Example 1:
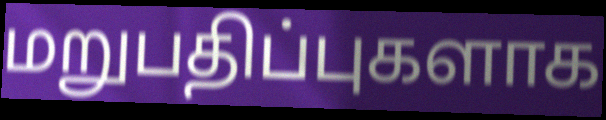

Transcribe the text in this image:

மறுபதிப்புகளாக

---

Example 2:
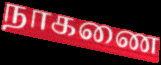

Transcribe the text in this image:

நாகணை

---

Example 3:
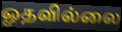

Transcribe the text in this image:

ஓதவில்லை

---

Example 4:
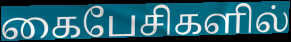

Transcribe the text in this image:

கைபேசிகளில்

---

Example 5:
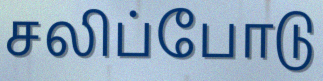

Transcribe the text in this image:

சலிப்போடு